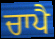
ਚਾਪੈ